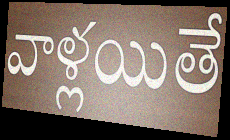
వాళ్లయితే